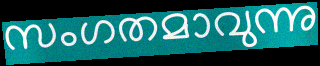
സംഗതമാവുന്നു